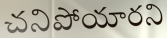
చనిపోయారని